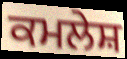
ਕਮਲੇਸ਼